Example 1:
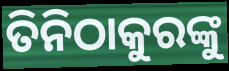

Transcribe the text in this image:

ତିନିଠାକୁରଙ୍କୁ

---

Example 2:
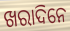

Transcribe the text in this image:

ଖରାଦିନେ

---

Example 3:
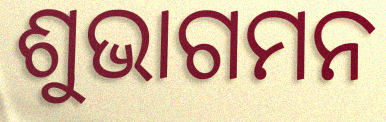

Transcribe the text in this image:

ଶୁଭାଗମନ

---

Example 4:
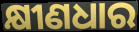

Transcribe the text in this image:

କ୍ଷୀଣଧାର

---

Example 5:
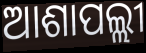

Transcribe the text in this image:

ଆଶାପଲ୍ଲୀ